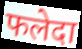
फलेदा